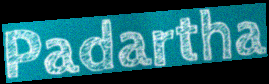
Padartha